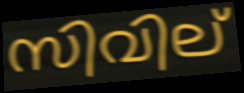
സിവില്